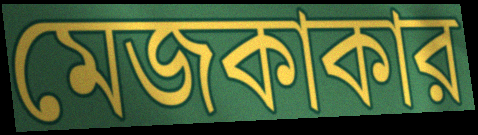
মেজকাকার